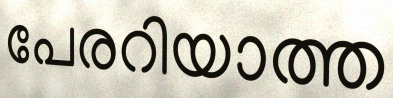
പേരറിയാത്ത